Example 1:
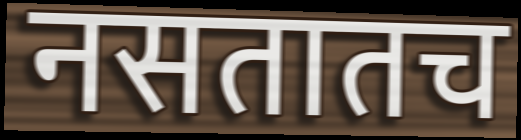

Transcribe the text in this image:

नसतातच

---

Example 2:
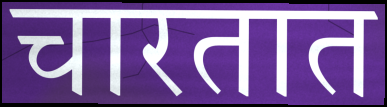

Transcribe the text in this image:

चारतात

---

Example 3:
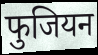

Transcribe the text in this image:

फुजियन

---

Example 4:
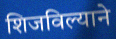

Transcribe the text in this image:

शिजविल्याने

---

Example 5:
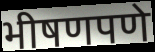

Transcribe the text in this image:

भीषणपणे